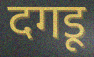
दगडू